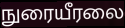
நுரையீரலை